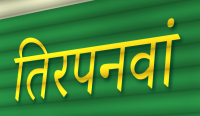
तिरपनवां